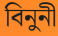
বিনুনী